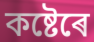
কষ্টেৰে